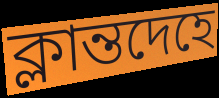
ক্লান্তদেহে